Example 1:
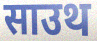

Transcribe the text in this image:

साउथ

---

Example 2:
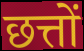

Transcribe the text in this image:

छत्तों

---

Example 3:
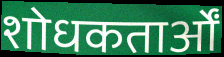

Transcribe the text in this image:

शोधकतार्ओं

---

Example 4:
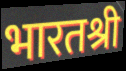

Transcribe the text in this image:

भारतश्री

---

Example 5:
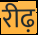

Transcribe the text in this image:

रीढ़